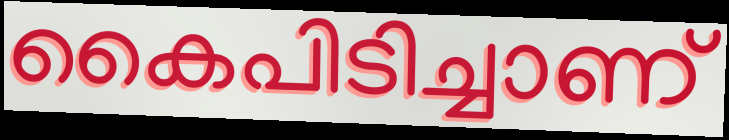
കൈപിടിച്ചാണ്